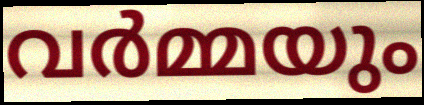
വർമ്മയും